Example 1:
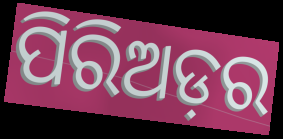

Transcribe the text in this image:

ପିରିଅଡ଼ର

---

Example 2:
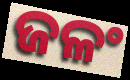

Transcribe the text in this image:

ଜଳଂ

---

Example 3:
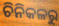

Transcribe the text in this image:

ଚିନିକଳରୁ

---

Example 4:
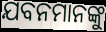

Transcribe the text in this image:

ଯବନମାନଙ୍କୁ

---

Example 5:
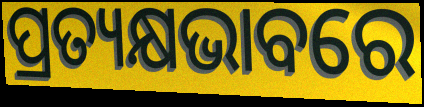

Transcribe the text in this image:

ପ୍ରତ୍ୟକ୍ଷଭାବରେ